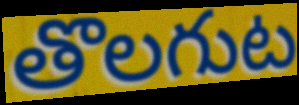
తొలగుట